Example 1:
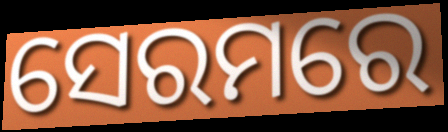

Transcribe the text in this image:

ସେରମରେ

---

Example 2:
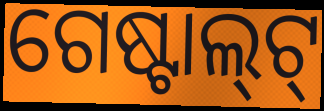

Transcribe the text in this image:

ଗେଷ୍ଟାଲ୍‌ଟ୍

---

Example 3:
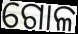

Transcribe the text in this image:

ଗୋଳ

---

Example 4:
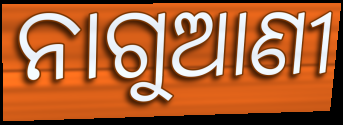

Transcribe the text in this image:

ନାଗୁଆଣୀ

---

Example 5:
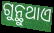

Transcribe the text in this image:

ଗୁନ୍ଥୁଥାଏ